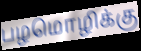
பழமொழிக்கு